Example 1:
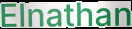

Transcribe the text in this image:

Elnathan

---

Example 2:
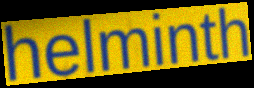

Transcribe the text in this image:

helminth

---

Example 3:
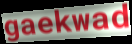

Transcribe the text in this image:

gaekwad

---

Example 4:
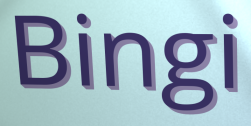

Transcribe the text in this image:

Bingi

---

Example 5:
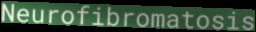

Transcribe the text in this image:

Neurofibromatosis